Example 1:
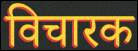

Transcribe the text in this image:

विचारक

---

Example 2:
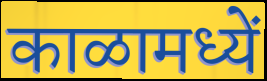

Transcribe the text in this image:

काळामध्यें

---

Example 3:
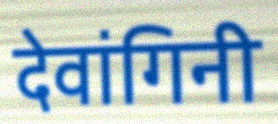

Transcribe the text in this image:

देवांगिनी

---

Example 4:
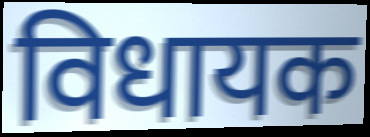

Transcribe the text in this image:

विधायक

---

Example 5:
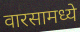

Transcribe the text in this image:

वारसामध्ये